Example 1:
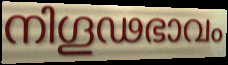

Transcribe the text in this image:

നിഗൂഢഭാവം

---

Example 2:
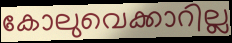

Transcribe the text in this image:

കോലുവെക്കാറില്ല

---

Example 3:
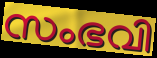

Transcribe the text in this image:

സംഭവി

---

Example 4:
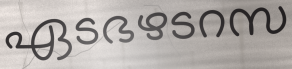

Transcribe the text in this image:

ഏടഭഴടറസ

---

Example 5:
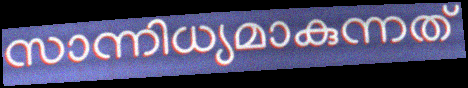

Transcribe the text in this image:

സാന്നിധ്യമാകുന്നത്